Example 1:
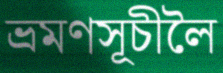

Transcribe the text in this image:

ভ্ৰমণসূচীলৈ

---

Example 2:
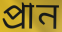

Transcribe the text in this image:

প্ৰান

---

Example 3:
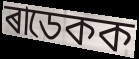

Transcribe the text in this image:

ৰাডেকক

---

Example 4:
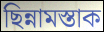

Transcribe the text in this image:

ছিন্নামস্তাক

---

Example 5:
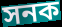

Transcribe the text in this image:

সনক